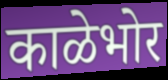
काळेभोर